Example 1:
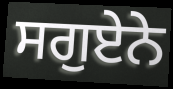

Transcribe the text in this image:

ਸਗੁਏਨੇ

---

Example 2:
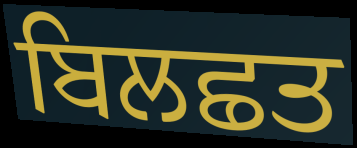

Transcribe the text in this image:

ਬਿਲਛਤ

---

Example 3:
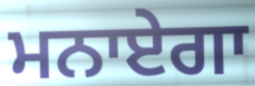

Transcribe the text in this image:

ਮਨਾਏਗਾ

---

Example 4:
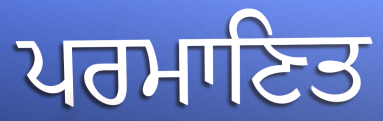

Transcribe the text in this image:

ਪਰਮਾਣਿਤ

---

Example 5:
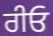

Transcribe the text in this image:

ਰੀਓ